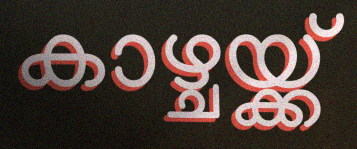
കാഴ്ചയ്ക്ക്